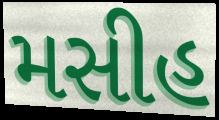
મસીહ